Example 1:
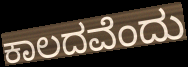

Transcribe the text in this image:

ಕಾಲದವೆಂದು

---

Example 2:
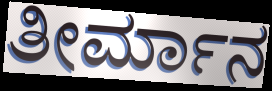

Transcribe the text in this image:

ತೀರ್ಮಾನ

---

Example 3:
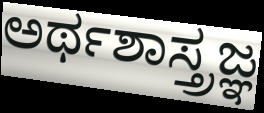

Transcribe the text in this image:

ಅರ್ಥಶಾಸ್ತ್ರಜ್ಞ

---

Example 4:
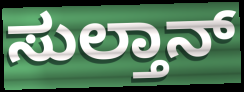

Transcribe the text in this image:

ಸುಲ್ತಾನ್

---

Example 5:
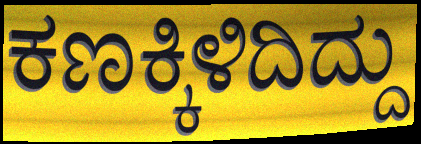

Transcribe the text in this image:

ಕಣಕ್ಕಿಳಿದಿದ್ದು